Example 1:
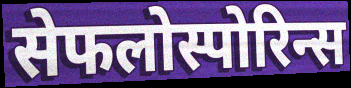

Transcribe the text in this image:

सेफलोस्पोरिन्स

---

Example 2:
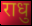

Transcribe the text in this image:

राधु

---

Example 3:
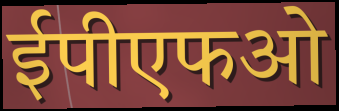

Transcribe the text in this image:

ईपीएफओ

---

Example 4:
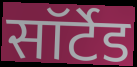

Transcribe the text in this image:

सॉर्टेड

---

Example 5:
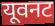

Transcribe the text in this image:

यूवनट